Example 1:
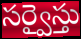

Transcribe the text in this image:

సర్వైస్తు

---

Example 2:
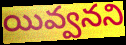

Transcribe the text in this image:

యివ్వనని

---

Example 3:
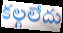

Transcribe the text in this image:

కల్గలేదు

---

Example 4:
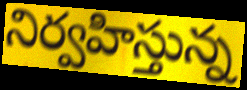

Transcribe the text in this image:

నిర్వహిస్తున్న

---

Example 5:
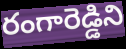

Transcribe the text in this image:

రంగారెడ్డిని